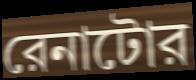
রেনাটোর